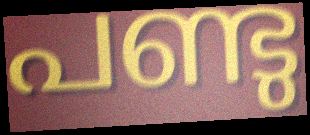
പണ്ടു